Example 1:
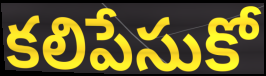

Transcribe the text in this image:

కలిపేసుకో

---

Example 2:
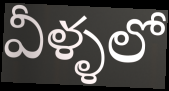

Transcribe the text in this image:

వీళ్ళలో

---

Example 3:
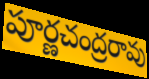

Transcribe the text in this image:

పూర్ణచంద్రరావు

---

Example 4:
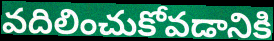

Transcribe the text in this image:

వదిలించుకోవడానికి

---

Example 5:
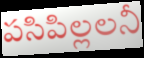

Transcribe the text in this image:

పసిపిల్లలనీ